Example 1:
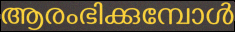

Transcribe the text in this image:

ആരംഭിക്കുമ്പോൾ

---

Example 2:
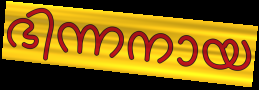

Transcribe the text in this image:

ഭിന്നനായ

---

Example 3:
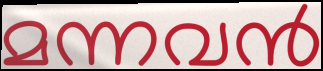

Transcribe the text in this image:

മന്നവൻ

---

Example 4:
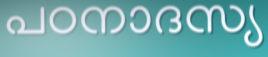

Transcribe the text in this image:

പഠനാദസ്യ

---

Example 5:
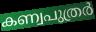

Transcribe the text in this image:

കണ്വപുത്രർ